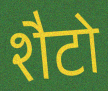
शैटो